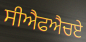
ਸੀਐਫਐਚਏ